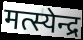
मत्स्येन्द्र